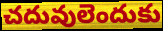
చదువులెందుకు